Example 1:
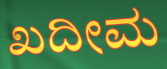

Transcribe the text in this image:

ಖದೀಮ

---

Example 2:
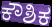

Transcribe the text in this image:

ಕೌಶಿಕ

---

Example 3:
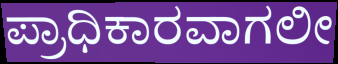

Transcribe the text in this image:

ಪ್ರಾಧಿಕಾರವಾಗಲೀ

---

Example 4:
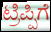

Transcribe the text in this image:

ಟ್ರಿಪ್ಪಿಗೆ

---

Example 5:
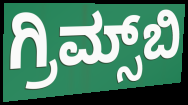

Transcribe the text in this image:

ಗ್ರಿಮ್ಸ್‌ಬಿ